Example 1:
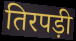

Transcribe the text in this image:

तिरपड़ी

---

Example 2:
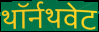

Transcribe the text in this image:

थॉर्नथवेट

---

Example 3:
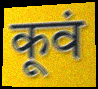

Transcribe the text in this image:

कूवं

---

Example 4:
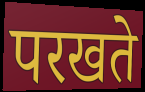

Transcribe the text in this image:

परखते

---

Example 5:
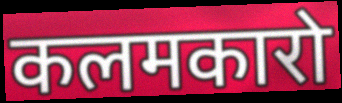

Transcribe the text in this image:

कलमकारो